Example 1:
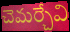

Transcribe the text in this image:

చెమర్చేవి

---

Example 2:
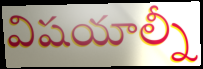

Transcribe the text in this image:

విషయాల్నీ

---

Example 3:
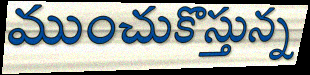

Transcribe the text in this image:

ముంచుకొస్తున్న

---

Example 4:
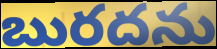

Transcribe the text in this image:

బురదను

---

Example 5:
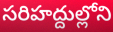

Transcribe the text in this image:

సరిహద్దుల్లోని